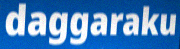
daggaraku